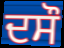
ਦਸੌ